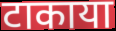
टाकाया